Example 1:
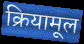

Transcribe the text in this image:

क्रियामूल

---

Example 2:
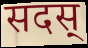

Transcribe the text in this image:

सदस्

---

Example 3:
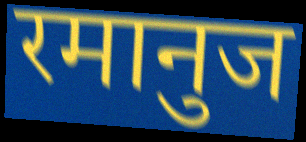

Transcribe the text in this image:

रमानुज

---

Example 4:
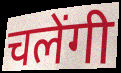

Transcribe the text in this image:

चलेंगी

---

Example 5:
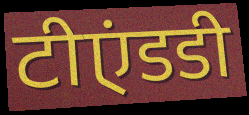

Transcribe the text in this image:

टीएंडडी